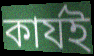
কাৰ্যই